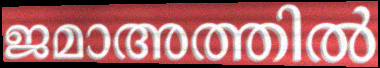
ജമാഅത്തിൽ